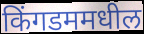
किंगडममधील